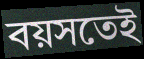
বয়সতেই